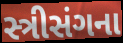
સ્ત્રીસંગના